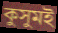
কুসুমই